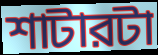
শাটারটা